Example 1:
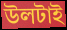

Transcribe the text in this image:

উলটাই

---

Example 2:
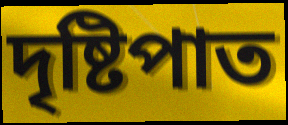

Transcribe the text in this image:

দৃষ্টিপাত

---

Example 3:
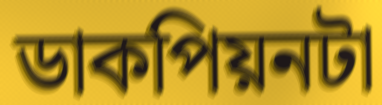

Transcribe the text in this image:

ডাকপিয়নটা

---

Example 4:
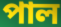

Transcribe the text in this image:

পাল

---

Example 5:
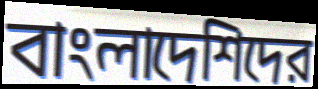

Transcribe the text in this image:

বাংলাদেশিদের